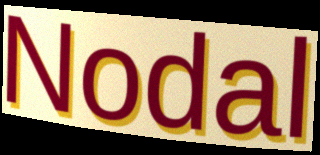
Nodal